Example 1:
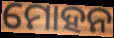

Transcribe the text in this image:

ମୋହନ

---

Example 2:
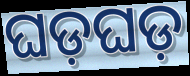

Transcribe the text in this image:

ଘଡ଼ଘଡ଼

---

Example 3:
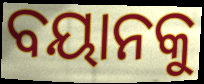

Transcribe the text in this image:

ବୟାନକୁ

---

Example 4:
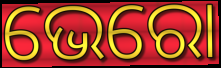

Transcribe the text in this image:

ଭେରୋ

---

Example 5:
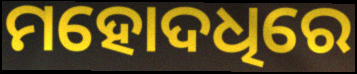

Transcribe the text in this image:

ମହୋଦଧିରେ